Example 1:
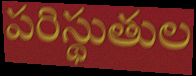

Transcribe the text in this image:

పరిస్థుతుల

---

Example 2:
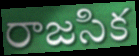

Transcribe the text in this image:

రాజసిక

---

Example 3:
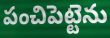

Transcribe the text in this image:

పంచిపెట్టెను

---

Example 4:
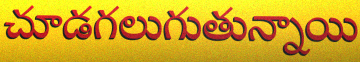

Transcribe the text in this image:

చూడగలుగుతున్నాయి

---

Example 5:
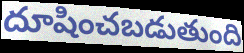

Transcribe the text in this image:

దూషించబడుతుంది